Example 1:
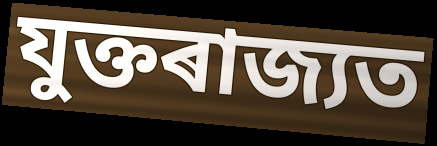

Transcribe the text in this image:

যুক্তৰাজ্যত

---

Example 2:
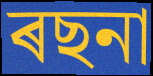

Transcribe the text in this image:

ৰছনা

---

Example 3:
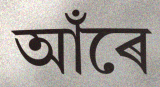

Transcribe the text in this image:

আঁৰে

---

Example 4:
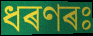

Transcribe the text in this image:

ধৰণৰঃ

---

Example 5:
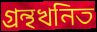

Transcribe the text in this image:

গ্ৰন্থখনিত